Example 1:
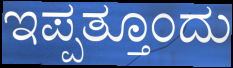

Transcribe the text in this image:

ಇಪ್ಪತ್ತೂಂದು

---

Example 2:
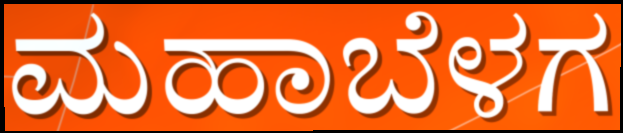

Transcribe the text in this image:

ಮಹಾಬೆಳಗ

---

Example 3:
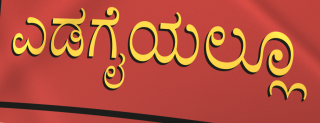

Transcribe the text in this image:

ಎಡಗೈಯಲ್ಲೂ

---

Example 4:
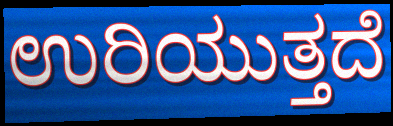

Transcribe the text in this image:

ಉರಿಯುತ್ತದೆ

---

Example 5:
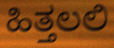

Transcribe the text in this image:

ಹಿತ್ತಲಲಿ